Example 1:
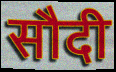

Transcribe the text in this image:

सौदी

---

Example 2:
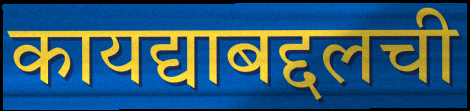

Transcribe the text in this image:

कायद्याबद्दलची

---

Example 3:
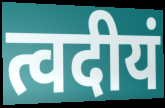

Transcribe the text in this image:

त्वदीयं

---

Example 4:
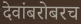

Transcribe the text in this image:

देवांबरोबरच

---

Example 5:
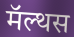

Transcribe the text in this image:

मॅल्थस